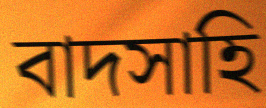
বাদসাহি